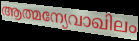
ആത്മന്യേവാഖിലം